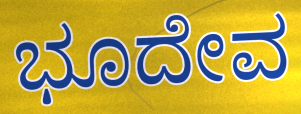
ಭೂದೇವ